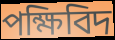
পক্ষিবিদ